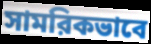
সামরিকভাবে